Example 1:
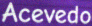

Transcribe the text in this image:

Acevedo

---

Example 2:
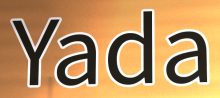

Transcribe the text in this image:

Yada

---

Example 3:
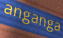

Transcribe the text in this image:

anganga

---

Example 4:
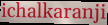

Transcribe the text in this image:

ichalkaranji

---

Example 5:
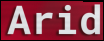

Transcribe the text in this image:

Arid